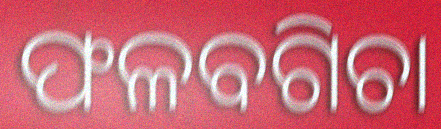
ଫଳବଗିଚା